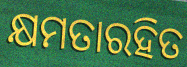
କ୍ଷମତାରହିତ